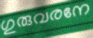
ഗുരുവരനേ